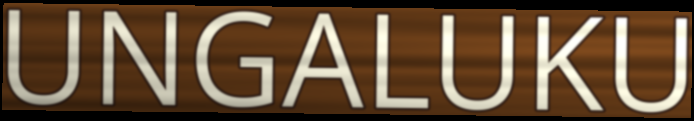
UNGALUKU